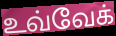
உவ்வேக்